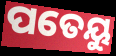
ପତେୟୁ